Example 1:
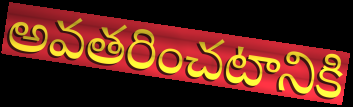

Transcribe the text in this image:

అవతరించటానికి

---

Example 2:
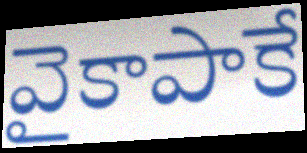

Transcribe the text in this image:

వైకాపాకే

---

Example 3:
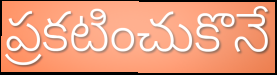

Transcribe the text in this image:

ప్రకటించుకొనే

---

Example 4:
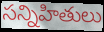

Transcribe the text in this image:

సన్నిహితులు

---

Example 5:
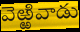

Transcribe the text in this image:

వెఱ్ఱివాడు